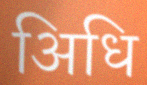
अिधि